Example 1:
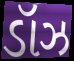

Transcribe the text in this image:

ડૉઝ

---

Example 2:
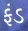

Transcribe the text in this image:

ફંડ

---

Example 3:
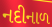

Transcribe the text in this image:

નદીનાળ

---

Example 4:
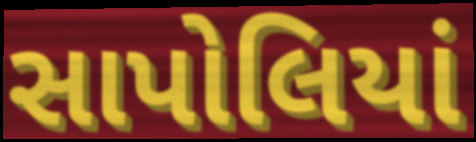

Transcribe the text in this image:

સાપોલિયાં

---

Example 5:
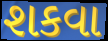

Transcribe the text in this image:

શકવા